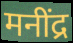
मनींद्र